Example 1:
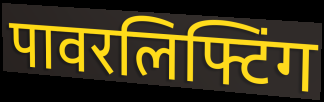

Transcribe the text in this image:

पावरलिफ्टिंग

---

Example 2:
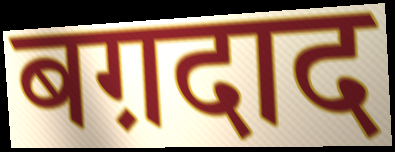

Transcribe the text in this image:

बग़दाद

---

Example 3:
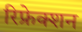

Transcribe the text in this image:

रिफ्रेक्शन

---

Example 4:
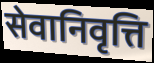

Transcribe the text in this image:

सेवानिवृत्ति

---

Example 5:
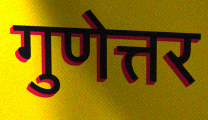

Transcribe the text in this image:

गुणेत्तर